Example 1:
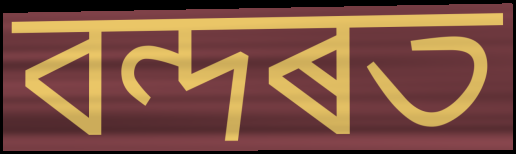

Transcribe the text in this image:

বন্দৰত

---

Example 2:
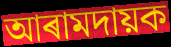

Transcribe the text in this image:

আৰামদায়ক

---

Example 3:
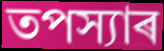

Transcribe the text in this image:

তপস্যাৰ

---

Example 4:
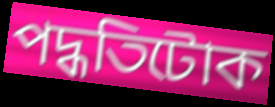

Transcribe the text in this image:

পদ্ধতিটোক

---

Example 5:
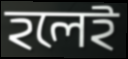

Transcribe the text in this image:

হলেই